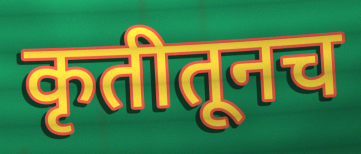
कृतीतूनच